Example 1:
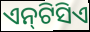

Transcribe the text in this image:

ଏନ୍‌ଟିସିଏ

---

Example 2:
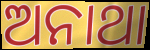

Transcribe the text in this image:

ଅନାଥା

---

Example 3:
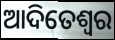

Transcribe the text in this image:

ଆଦିତେଶ୍ଵର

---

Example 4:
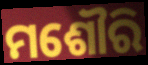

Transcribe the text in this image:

ମଶୌରି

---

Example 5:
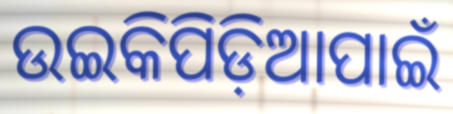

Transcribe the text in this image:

ଉଇକିପିଡ଼ିଆପାଇଁ